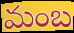
మంబ